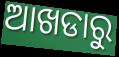
ଆଖଡାରୁ